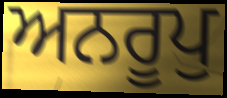
ਅਨਰੂਪੁ